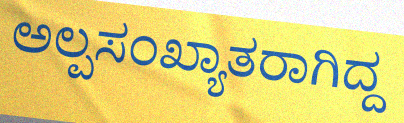
ಅಲ್ಪಸಂಖ್ಯಾತರಾಗಿದ್ದ